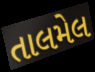
તાલમેલ